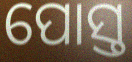
ପୋସ୍ତ